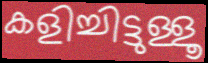
കളിച്ചിട്ടുള്ളൂ